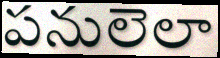
పనులెలా